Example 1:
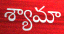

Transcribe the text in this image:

శ్యామా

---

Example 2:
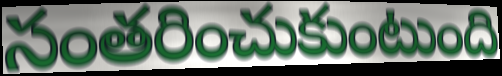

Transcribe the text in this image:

సంతరించుకుంటుంది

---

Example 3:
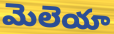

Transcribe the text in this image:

మెలెయా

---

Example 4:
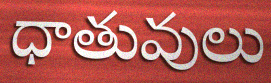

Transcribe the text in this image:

ధాతువులు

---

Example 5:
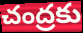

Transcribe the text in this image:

చంద్రకు